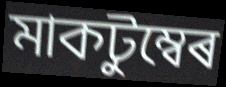
মাকটুম্বেৰ